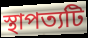
স্থাপত্যটি